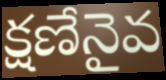
క్షణేనైవ